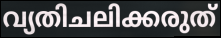
വ്യതിചലിക്കരുത്